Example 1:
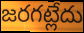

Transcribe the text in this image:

జరగట్లేదు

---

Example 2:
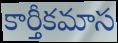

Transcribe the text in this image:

కార్తీకమాస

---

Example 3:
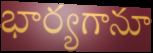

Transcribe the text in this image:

భార్యగానూ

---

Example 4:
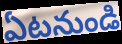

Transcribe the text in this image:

ఏటనుండి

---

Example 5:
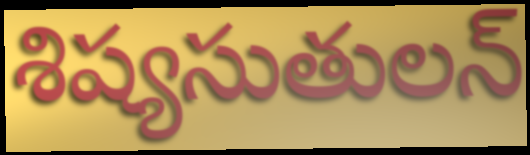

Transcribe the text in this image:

శిష్యసుతులన్